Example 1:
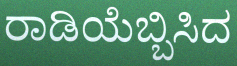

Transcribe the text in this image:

ರಾಡಿಯೆಬ್ಬಿಸಿದ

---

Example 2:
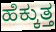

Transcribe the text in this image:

ಹೆಕ್ಕುತ್ತ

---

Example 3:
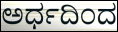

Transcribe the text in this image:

ಅರ್ಧದಿಂದ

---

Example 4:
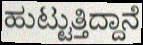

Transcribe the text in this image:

ಹುಟ್ಟುತ್ತಿದ್ದಾನೆ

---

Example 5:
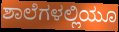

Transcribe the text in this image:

ಶಾಲೆಗಳಲ್ಲಿಯೂ